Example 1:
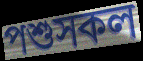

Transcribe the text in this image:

পশুসকল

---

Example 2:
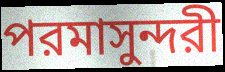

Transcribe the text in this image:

পরমাসুন্দরী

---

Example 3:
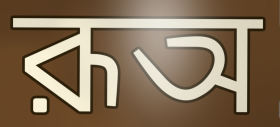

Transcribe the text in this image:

রূঅ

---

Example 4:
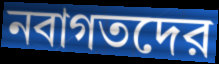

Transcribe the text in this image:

নবাগতদের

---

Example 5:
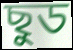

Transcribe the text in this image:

ছুড